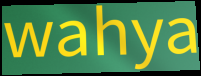
wahya